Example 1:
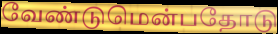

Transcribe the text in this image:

வேண்டுமென்பதோடு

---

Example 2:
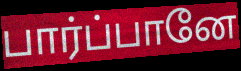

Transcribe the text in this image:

பார்ப்பானே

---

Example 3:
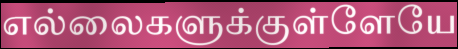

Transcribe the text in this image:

எல்லைகளுக்குள்ளேயே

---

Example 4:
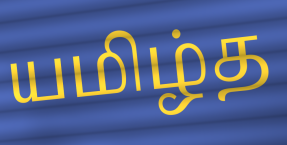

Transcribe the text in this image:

யமிழ்த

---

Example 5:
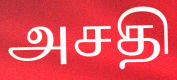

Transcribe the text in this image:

அசதி